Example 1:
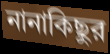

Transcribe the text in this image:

নানাকিছুর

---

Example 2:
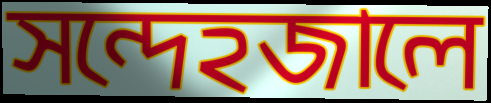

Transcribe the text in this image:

সন্দেহজালে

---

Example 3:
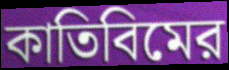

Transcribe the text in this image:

কাতিবিমের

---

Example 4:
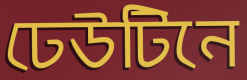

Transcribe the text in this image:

ঢেউটিনে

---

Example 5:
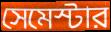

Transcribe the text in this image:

সেমেস্টার